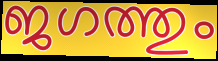
ജഗത്തും